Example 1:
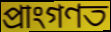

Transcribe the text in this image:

প্ৰাংগণত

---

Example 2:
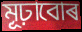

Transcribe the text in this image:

মূঢ়াবোৰ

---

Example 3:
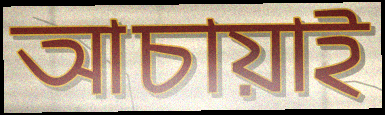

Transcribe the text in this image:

আচায়াই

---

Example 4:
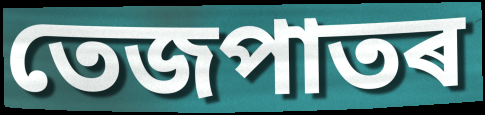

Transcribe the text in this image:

তেজপাতৰ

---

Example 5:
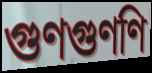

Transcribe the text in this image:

গুণগুণণি